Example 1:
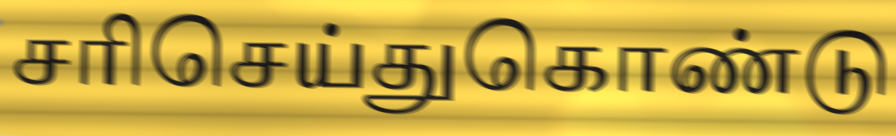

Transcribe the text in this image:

சரிசெய்துகொண்டு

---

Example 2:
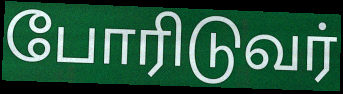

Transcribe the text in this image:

போரிடுவர்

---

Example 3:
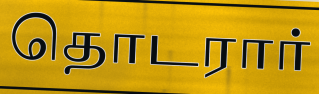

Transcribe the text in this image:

தொடரார்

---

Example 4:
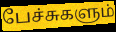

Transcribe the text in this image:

பேச்சுகளும்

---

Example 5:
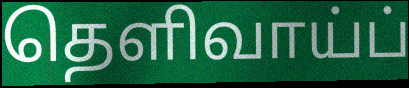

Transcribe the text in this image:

தெளிவாய்ப்